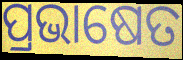
ପ୍ରଭାଷେତ